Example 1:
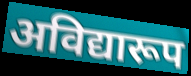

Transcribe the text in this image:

अविद्यारूप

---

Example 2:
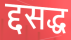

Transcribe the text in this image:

द्दसद्ध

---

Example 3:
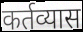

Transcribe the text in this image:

कर्तव्यास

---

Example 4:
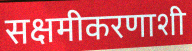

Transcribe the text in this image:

सक्षमीकरणाशी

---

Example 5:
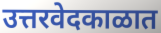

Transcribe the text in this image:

उत्तरवेदकाळात